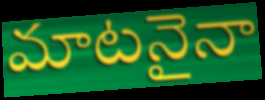
మాటనైనా